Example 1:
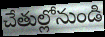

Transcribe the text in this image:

చేతుల్లోనుండి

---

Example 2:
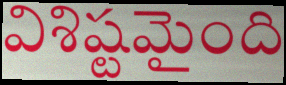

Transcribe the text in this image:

విశిష్టమైంది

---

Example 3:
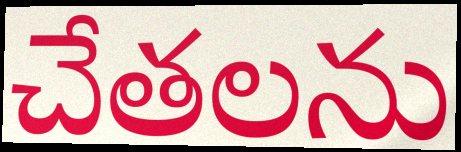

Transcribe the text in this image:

చేతలను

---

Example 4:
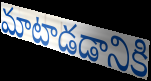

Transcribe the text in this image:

మాటాడడానికి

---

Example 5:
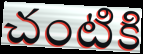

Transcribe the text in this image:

చంటికి